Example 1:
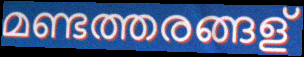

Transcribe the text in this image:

മണ്ടത്തരങ്ങള്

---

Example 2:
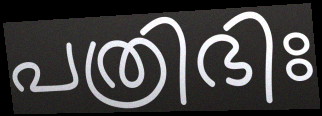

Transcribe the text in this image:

പത്രിഭിഃ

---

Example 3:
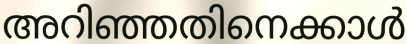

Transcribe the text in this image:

അറിഞ്ഞതിനെക്കാൾ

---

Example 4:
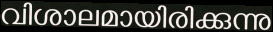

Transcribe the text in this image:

വിശാലമായിരിക്കുന്നു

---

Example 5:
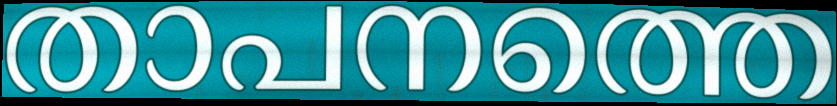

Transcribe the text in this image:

താപനത്തെ